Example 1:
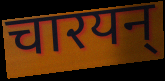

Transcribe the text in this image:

चारयन्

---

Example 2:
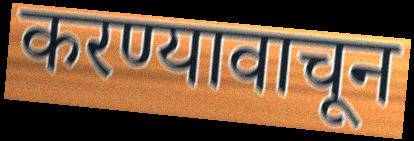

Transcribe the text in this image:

करण्यावाचून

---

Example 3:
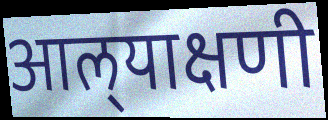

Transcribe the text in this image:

आल्याक्षणी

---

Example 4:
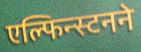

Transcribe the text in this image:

एल्फिन्स्टनने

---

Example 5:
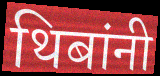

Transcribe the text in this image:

थिबांनी